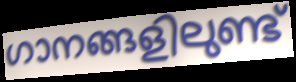
ഗാനങ്ങളിലുണ്ട്